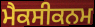
ਮੈਕਸੀਕਨਮ